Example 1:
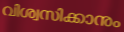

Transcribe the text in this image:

വിശ്വസിക്കാനും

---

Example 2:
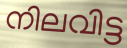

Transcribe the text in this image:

നിലവിട്ട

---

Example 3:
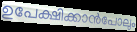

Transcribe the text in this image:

ഉപേക്ഷിക്കാൻപോലും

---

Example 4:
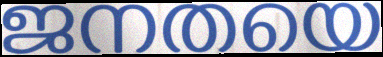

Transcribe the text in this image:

ജനതയെ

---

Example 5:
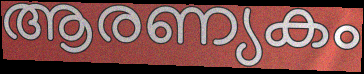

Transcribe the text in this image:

ആരണ്യകം